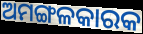
ଅମଙ୍ଗଳକାରକ